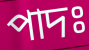
পাদঃ